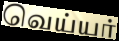
வெய்யர்